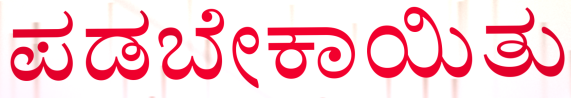
ಪಡಬೇಕಾಯಿತು